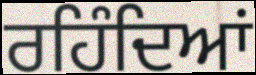
ਰਹਿੰਦਿਆਂ